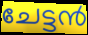
ചേട്ടൻ